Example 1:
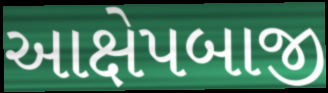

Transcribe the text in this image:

આક્ષેપબાજી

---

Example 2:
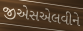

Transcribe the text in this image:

જીએસએલવીને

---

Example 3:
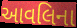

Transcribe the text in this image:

આવલિના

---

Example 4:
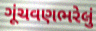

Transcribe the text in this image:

ગૂંચવણભરેલું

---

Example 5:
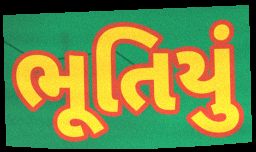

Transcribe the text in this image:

ભૂતિયું